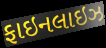
ફાઇનલાઇઝ